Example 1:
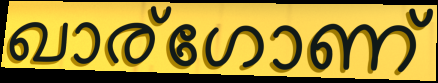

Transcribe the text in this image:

ഖാര്ഗോണ്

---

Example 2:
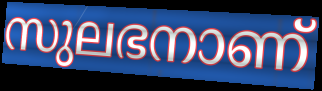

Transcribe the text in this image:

സുലഭനാണ്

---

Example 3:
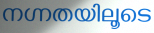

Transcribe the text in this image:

നഗ്നതയിലൂടെ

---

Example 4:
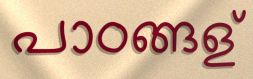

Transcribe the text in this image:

പാഠങ്ങള്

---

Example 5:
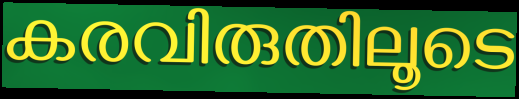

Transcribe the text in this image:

കരവിരുതിലൂടെ